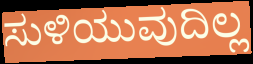
ಸುಳಿಯುವುದಿಲ್ಲ